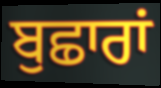
ਬੁਛਾਰਾਂ